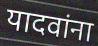
यादवांना